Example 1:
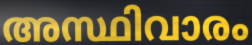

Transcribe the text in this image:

അസ്ഥിവാരം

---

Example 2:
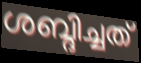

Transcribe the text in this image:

ശബ്ദിച്ചത്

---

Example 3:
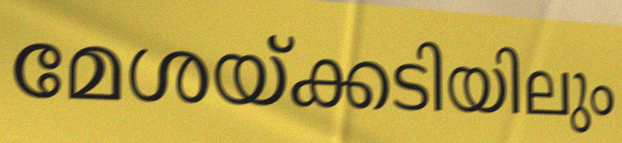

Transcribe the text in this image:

മേശയ്ക്കടിയിലും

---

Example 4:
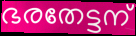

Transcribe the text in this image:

ഭരതേട്ടന്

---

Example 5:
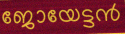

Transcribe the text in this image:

ജോയേട്ടൻ